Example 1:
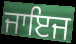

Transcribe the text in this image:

ਜਾਇਜ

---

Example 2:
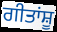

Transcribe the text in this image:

ਗੀਤਾਂਸ਼ੂ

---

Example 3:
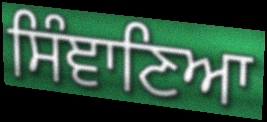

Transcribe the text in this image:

ਸਿੰਞਾਣਿਆ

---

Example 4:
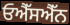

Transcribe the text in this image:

ਓਐੱਸਐੱਨ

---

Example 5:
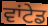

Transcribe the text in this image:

ਵਾਂਟੇਡ